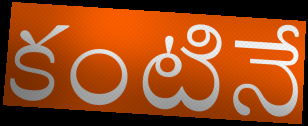
కంటినే